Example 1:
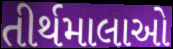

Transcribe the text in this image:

તીર્થમાલાઓ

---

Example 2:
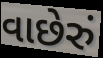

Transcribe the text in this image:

વાછેરું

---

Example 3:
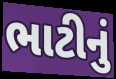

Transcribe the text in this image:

ભાટીનું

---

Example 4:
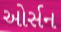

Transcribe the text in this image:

ઓર્સન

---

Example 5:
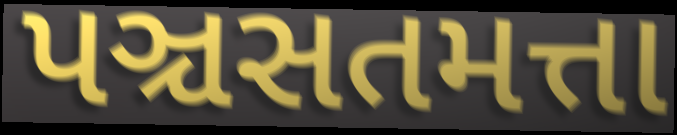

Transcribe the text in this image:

પઞ્ચસતમત્તા